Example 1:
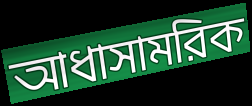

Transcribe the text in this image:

আধাসামরিক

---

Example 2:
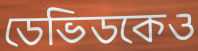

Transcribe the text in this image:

ডেভিডকেও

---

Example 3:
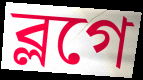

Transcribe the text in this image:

ব্লগে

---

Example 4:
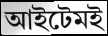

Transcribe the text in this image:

আইটেমই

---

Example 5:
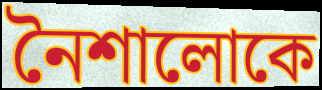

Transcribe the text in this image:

নৈশালোকে